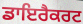
ਡਾਇਰੈਕਰਟ